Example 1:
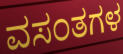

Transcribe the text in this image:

ವಸಂತಗಳ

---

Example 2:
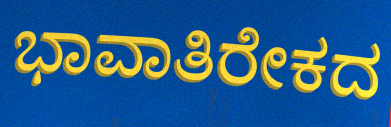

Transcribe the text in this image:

ಭಾವಾತಿರೇಕದ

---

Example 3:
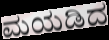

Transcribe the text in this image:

ಮಯಡಿದ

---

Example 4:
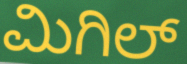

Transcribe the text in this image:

ಮಿಗಿಲ್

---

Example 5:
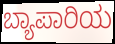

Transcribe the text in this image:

ಬ್ಯಾಪಾರಿಯ